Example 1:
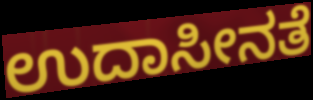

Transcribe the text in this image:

ಉದಾಸೀನತೆ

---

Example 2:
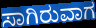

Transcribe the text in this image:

ಸಾಗಿರುವಾಗ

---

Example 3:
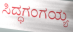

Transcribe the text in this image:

ಸಿದ್ಧಗಂಗಯ್ಯ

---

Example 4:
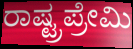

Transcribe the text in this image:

ರಾಷ್ಟ್ರಪ್ರೇಮಿ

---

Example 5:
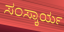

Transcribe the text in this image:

ಸಂಸ್ಕಾರ್ಯ